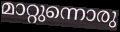
മാറ്റുന്നൊരു